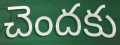
చెందకు